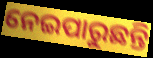
ନେଇପାରୁଛନ୍ତି